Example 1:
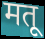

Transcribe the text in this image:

मतू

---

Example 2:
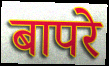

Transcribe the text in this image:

बापरे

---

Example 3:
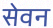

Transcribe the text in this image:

सेवन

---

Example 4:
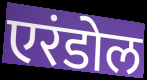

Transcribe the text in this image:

एरंडोल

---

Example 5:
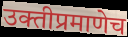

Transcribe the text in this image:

उक्तीप्रमाणेच